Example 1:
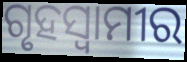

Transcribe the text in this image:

ଗୃହସ୍ୱାମୀର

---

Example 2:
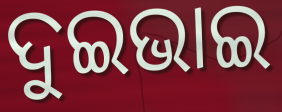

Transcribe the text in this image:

ଦୁଇଭାଇ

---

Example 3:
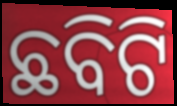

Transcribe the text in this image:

ଛବିଟି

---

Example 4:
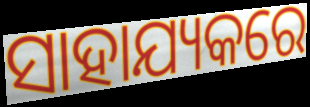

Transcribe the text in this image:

ସାହାଯ୍ୟକରେ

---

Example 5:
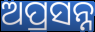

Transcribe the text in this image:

ଅପ୍ରସନ୍ନ